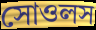
সোওলস